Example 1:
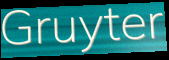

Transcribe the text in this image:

Gruyter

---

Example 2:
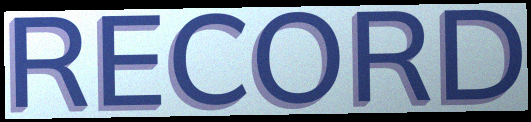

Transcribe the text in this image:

RECORD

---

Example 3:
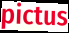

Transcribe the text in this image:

pictus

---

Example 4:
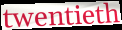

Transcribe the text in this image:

twentieth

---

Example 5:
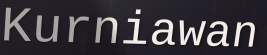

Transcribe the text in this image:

Kurniawan